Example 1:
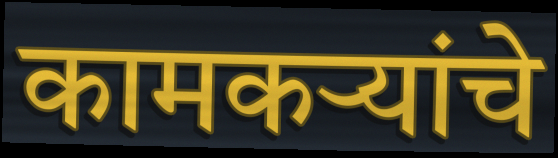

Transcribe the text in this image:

कामकऱ्यांचे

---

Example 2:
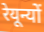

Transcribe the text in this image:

रेयून्यों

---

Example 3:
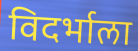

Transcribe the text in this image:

विदर्भाला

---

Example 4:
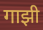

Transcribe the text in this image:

गाझी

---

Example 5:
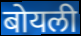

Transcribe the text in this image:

बोयली